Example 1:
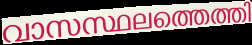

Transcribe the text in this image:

വാസസ്ഥലത്തെത്തി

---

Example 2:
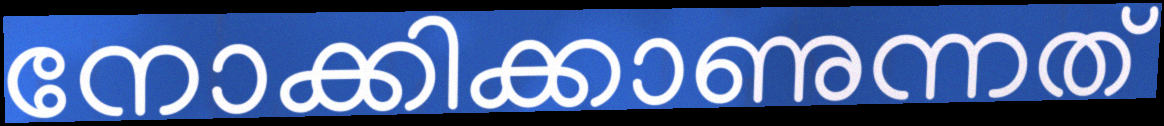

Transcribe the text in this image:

നോക്കിക്കാണുന്നത്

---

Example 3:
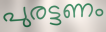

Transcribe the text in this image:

പുരട്ടണം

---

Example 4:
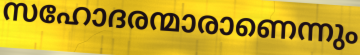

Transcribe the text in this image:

സഹോദരന്മാരാണെന്നും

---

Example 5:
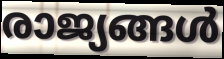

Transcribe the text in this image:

രാജ്യങ്ങൾ